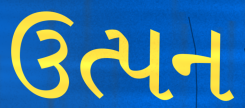
ઉત્પન